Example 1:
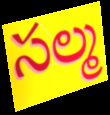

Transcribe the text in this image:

సల్మ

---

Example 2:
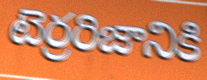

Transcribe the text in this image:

టెర్రరిజానికి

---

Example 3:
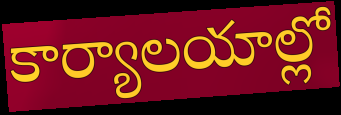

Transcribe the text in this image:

కార్యాలయాల్లో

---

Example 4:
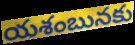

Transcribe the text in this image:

యశంబునకు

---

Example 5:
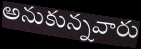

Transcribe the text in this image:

అనుకున్నవారు